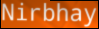
Nirbhay